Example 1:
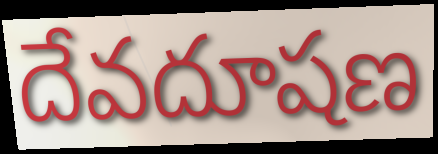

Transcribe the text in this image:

దేవదూషణ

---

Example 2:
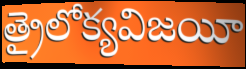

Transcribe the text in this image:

త్రైలోక్యవిజయీ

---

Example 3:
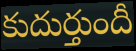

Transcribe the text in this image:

కుదుర్తుందీ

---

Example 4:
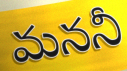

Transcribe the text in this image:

మననీ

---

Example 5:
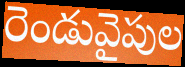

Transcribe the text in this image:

రెండువైపుల